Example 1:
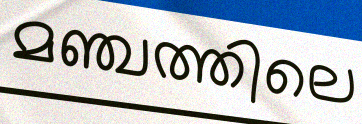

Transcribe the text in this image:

മഞ്ചത്തിലെ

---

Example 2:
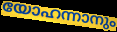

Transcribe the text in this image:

യോഹന്നാനും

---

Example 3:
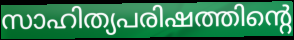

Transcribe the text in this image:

സാഹിത്യപരിഷത്തിന്റെ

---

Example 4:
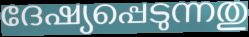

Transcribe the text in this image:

ദേഷ്യപ്പെടുന്നതു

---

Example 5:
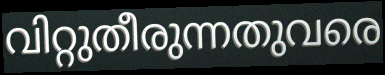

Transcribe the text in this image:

വിറ്റുതീരുന്നതുവരെ